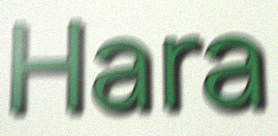
Hara